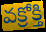
వక్రోక్తి